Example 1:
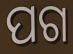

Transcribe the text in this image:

ପଗ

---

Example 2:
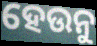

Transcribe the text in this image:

ହେଉନୁ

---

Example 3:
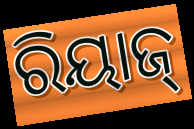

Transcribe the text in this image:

ରିୟାଜ୍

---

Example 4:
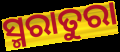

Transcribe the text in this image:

ସ୍ମରାତୁରା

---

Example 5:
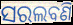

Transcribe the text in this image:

ସରଲବଣି